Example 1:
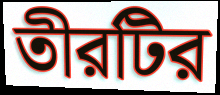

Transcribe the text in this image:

তীরটির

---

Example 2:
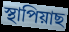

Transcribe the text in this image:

স্থাপিয়াছ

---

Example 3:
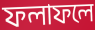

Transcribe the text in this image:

ফলাফলে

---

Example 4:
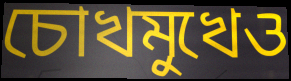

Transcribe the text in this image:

চোখমুখেও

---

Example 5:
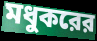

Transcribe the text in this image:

মধুকরের